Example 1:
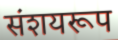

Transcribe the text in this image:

संशयरूप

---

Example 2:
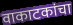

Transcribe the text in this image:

वाकाटकांचा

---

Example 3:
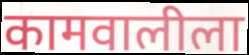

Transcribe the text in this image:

कामवालीला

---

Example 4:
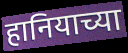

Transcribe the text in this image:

हानियाच्या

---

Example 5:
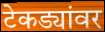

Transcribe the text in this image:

टेकड्यांवर